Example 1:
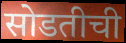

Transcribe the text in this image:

सोडतीची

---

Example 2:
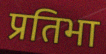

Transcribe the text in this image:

प्रतिभा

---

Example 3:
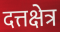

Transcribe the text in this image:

दत्तक्षेत्र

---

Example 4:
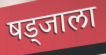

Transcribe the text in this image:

षड्जाला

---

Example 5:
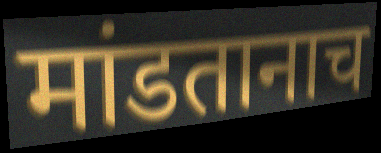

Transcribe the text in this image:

मांडतानाच